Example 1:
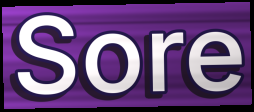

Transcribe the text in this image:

Sore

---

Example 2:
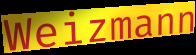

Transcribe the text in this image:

Weizmann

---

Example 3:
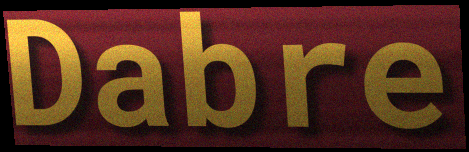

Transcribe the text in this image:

Dabre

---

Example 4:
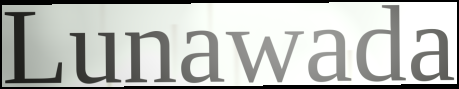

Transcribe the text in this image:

Lunawada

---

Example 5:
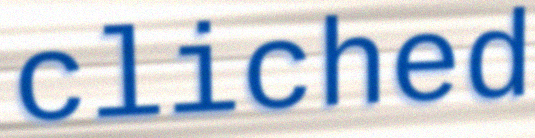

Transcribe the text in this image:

cliched